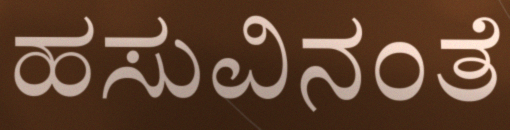
ಹಸುವಿನಂತೆ